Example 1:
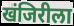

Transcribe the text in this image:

खंजिरीला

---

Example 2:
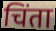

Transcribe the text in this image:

चिंता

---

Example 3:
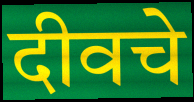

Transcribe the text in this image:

दीवचे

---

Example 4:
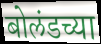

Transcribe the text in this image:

बोलंडच्या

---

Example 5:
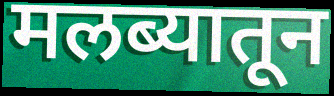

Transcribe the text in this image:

मलब्यातून